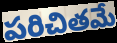
పరిచితమే